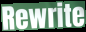
Rewrite